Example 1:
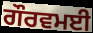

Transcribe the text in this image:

ਗੌਰਵਮਈ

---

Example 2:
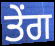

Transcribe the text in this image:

ਤੇਂਗ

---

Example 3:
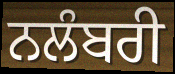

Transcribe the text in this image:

ਨਲੰਬਰੀ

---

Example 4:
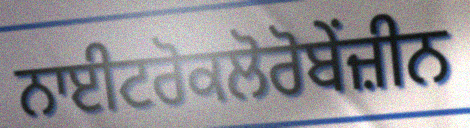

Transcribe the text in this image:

ਨਾਈਟਰੋਕਲੋਰੋਬੇਂਜ਼ੀਨ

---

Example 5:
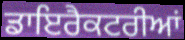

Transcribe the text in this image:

ਡਾਇਰੈਕਟਰੀਆਂ